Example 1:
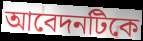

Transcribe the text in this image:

আবেদনটিকে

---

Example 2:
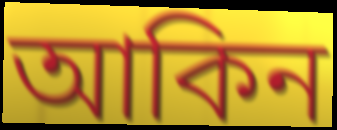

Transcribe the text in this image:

আকিন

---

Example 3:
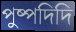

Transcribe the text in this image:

পুষ্পদিদি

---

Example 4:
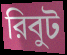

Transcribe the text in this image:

রিবুট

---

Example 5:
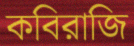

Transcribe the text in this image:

কবিরাজি